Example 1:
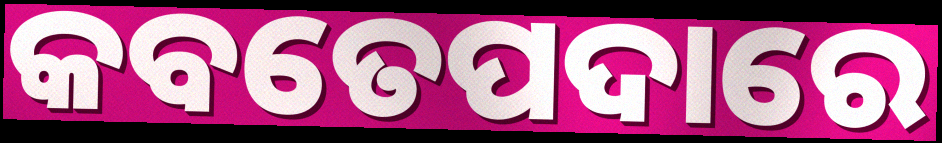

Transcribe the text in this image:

କବତେପଦାରେ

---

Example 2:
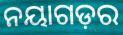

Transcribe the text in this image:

ନୟାଗଡ଼ର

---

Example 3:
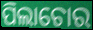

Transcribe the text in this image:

ପିଲାଚୋର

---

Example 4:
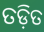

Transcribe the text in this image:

ତଡ଼ିତ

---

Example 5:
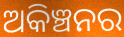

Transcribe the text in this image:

ଅକିଞ୍ଚନର